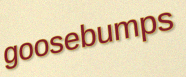
goosebumps